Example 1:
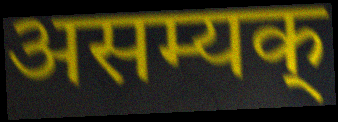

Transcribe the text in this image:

असम्यक्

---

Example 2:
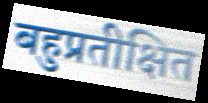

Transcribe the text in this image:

बहुप्रतीक्षित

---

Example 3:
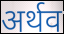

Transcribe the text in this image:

अर्थव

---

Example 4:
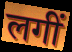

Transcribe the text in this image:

लगीं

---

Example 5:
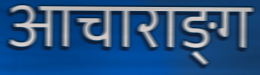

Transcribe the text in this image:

आचाराङ्ग